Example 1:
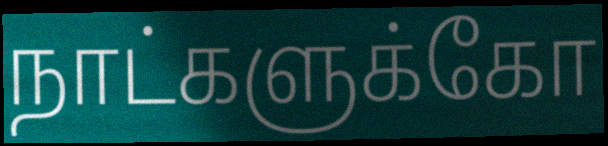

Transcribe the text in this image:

நாட்களுக்கோ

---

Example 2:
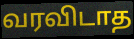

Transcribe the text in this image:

வரவிடாத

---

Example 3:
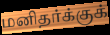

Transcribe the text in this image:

மனிதர்க்குக்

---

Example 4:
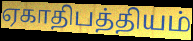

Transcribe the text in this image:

ஏகாதிபத்தியம்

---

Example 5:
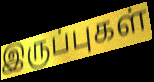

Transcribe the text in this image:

இருப்புகள்